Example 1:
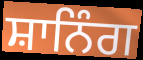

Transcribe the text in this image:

ਸ਼ਾਨਿੰਗ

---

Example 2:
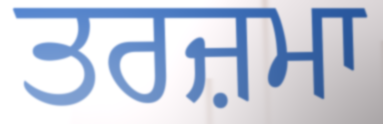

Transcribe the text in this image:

ਤਰਜ਼ਮਾ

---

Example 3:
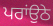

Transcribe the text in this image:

ਪਰਾਂਉਠੇ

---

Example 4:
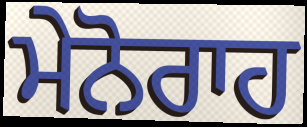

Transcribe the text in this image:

ਮੇਨੋਰਾਹ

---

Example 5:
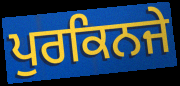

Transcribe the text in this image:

ਪੁਰਕਿਨਜੇ